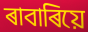
ৰাবাৰিয়ে